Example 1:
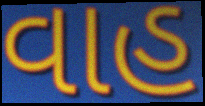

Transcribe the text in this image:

વાહ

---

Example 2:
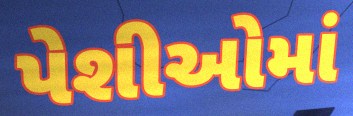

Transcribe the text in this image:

પેશીઓમાં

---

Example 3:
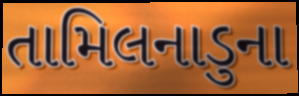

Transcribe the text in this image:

તામિલનાડુના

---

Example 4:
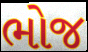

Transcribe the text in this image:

ભોજ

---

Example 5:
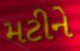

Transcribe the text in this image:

મટીને